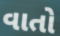
વાતો